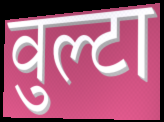
वुल्टा